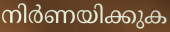
നിർണയിക്കുക